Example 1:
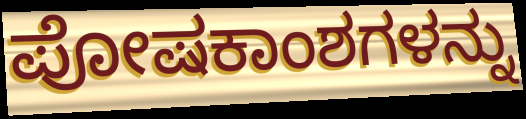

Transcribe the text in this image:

ಪೋಷಕಾಂಶಗಳನ್ನು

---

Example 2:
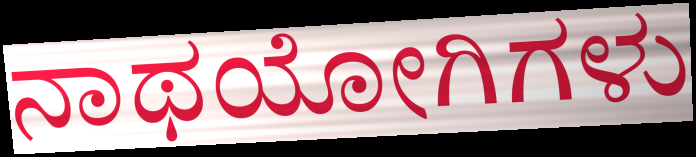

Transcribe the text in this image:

ನಾಥಯೋಗಿಗಳು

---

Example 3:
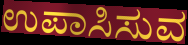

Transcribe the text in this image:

ಉಪಾಸಿಸುವ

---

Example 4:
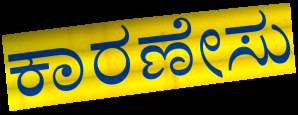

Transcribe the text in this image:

ಕಾರಣೇಸು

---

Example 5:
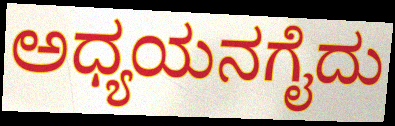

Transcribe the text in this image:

ಅಧ್ಯಯನಗೈದು